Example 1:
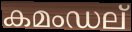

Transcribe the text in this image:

കമംഡല്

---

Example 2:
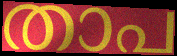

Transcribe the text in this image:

താപ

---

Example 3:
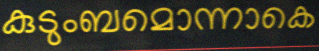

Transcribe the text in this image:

കുടുംബമൊന്നാകെ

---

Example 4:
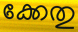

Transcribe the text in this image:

ക്കേതു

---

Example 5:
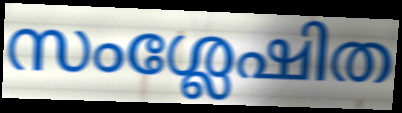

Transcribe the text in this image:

സംശ്ലേഷിത